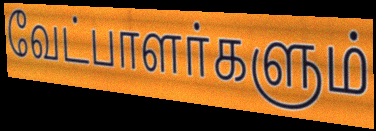
வேட்பாளர்களும்